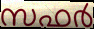
സഫർ